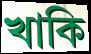
খাকি